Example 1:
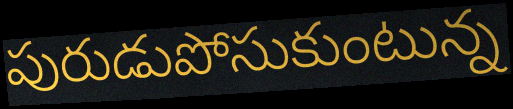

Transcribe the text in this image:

పురుడుపోసుకుంటున్న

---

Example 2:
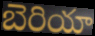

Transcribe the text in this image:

బెరియా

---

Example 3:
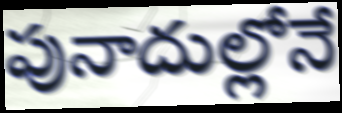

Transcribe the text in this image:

పునాదుల్లోనే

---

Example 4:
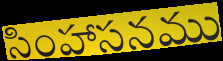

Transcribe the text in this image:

సింహాసనము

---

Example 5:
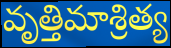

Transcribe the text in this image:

వృత్తిమాశ్రిత్య